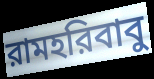
রামহরিবাবু